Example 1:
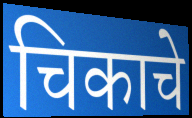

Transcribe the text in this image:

चिकाचे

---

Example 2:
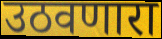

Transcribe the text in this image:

उठवणारा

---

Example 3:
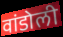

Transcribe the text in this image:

वांडोली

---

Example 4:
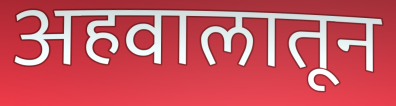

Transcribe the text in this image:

अहवालातून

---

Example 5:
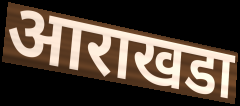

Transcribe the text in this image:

आराखडा